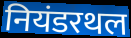
नियंडरथल